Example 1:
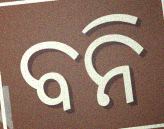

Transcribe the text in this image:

ବନି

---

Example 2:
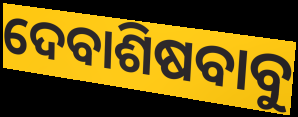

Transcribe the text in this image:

ଦେବାଶିଷବାବୁ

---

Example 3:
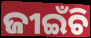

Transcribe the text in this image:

ଜୀଇଁଚି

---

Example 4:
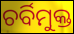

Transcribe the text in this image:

ଚର୍ବିମୁକ୍ତ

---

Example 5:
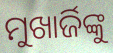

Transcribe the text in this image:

ମୁଖାର୍ଜିଙ୍କୁ